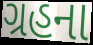
ગ્રહના